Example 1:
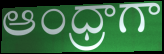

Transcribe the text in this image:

ఆంధ్రాగా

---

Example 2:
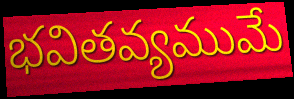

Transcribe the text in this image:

భవితవ్యముమే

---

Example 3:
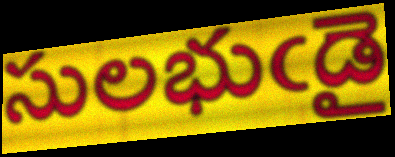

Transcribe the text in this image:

సులభుఁడై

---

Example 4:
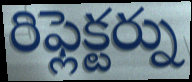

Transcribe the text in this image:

రిఫ్లెక్టర్ను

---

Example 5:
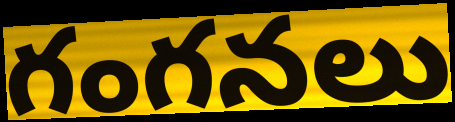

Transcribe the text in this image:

గంగనలు